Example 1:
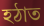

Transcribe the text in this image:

হঠাত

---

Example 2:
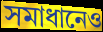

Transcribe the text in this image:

সমাধানেও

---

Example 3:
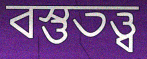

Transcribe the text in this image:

বস্তুতত্ত্ব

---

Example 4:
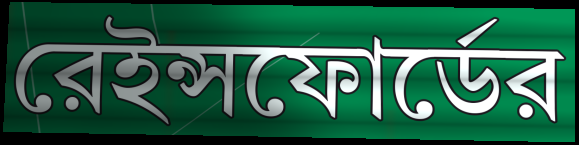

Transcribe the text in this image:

রেইন্সফোর্ডের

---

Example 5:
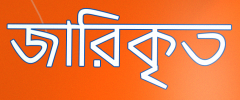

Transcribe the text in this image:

জারিকৃত